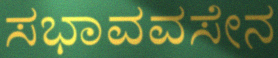
ಸಭಾವವಸೇನ